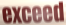
exceed